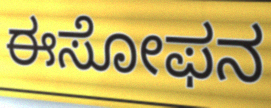
ಈಸೋಫನ